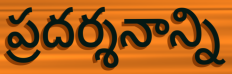
ప్రదర్శనాన్ని